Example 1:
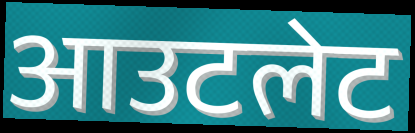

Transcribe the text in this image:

आउटलेट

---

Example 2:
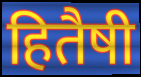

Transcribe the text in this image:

हितैषी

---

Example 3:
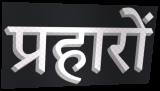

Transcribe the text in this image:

प्रहारों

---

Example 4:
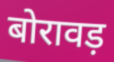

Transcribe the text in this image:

बोरावड़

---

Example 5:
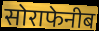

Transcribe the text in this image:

सोराफेनीब